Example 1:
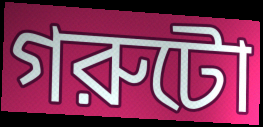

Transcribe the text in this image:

গরুটো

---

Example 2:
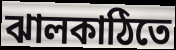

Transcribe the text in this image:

ঝালকাঠিতে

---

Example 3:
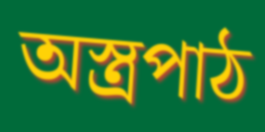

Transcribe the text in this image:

অস্ত্রপাঠ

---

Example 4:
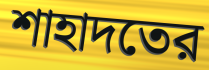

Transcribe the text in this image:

শাহাদতের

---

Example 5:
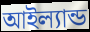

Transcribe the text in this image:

আইল্যান্ড